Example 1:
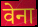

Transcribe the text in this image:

वेना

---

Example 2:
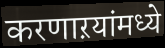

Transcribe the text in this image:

करणाऱयांमध्ये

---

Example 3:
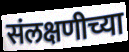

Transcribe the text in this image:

संलक्षणीच्या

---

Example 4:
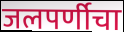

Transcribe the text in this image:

जलपर्णीचा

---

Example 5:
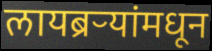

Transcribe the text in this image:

लायब्रऱ्यांमधून